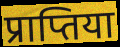
प्राप्तिया